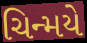
ચિન્મયે